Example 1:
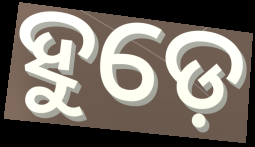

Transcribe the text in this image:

ହୁଡ଼େ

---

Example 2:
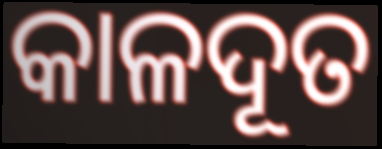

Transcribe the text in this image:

କାଳଦୂତ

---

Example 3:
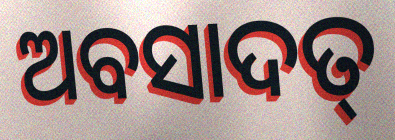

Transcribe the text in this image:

ଅବସାଦତ୍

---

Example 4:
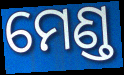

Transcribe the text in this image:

ମେଣ୍ଡ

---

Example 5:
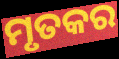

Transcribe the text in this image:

ମୃତକର